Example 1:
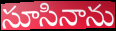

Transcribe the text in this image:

సూసినాను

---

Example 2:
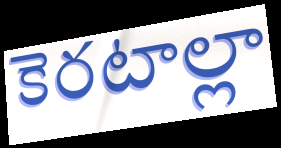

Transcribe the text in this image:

కెరటాల్లా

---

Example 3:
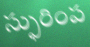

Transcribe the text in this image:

స్ఫురింప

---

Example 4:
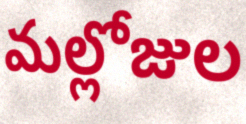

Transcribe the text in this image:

మల్లోజుల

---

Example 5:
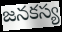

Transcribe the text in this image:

జనకస్య